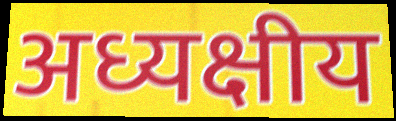
अध्यक्षीय